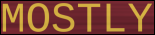
MOSTLY